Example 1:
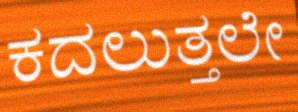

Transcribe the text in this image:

ಕದಲುತ್ತಲೇ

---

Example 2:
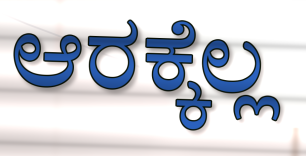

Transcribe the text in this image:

ಆರಕ್ಕೆಲ್ಲ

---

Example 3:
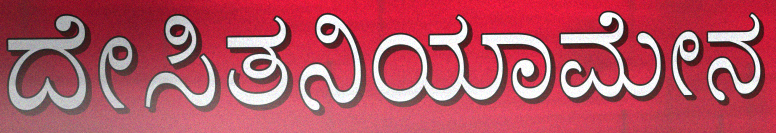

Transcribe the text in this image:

ದೇಸಿತನಿಯಾಮೇನ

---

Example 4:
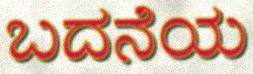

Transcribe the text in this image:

ಬದನೆಯ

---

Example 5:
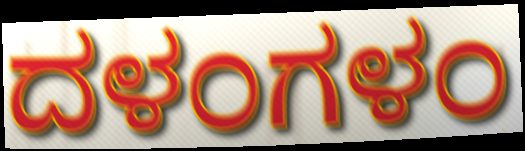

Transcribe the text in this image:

ದಳಂಗಳಂ